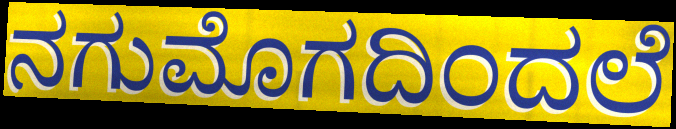
ನಗುಮೊಗದಿಂದಲೆ